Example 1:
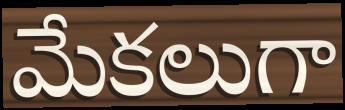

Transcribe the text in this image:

మేకలుగా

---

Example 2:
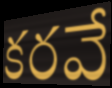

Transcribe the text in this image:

కరవే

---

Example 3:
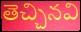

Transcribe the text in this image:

తెచ్చినవి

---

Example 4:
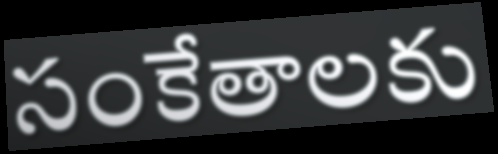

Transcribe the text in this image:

సంకేతాలకు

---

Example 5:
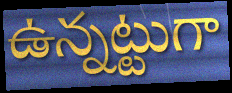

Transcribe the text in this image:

ఉన్నట్టుగా